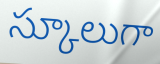
స్కూలుగా